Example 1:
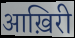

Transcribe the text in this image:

आख़िरी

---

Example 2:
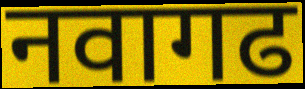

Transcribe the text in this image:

नवागढ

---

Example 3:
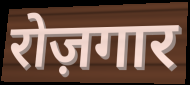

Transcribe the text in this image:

रोज़गार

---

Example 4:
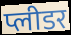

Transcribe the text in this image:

प्लीडर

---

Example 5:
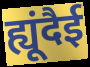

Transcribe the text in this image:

ह्यूंदैई